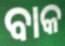
ବାକ